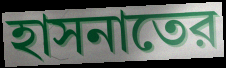
হাসনাতের